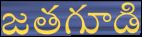
జతగూడి